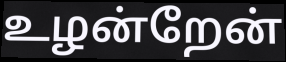
உழன்றேன்